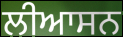
ਲੀਆਸਨ